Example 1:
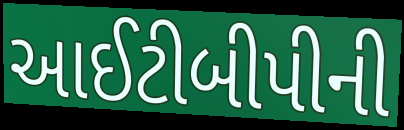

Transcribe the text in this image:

આઈટીબીપીની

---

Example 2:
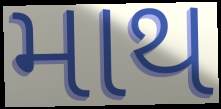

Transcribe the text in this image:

માથ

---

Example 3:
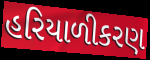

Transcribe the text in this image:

હરિયાળીકરણ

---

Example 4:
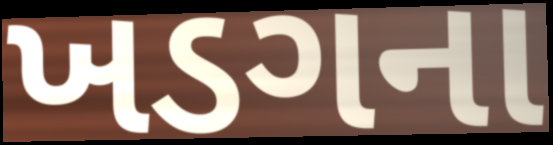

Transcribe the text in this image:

ખડગના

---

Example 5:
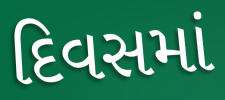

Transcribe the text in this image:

દિવસમાં